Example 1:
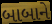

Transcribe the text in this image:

બાબાને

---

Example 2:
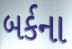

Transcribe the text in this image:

બર્કના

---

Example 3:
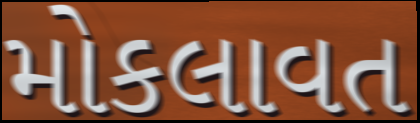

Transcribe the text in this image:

મોકલાવત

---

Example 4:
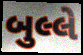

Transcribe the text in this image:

બુલ્લે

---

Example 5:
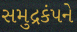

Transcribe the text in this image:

સમુદ્રકંપને